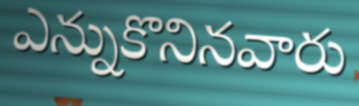
ఎన్నుకొనినవారు